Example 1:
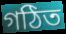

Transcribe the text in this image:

গঠিত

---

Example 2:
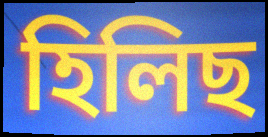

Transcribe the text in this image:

হিলিছ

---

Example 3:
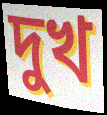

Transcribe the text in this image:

দুখ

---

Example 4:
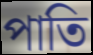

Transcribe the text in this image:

পাতি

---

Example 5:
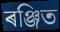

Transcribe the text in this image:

ৰঞ্জিত